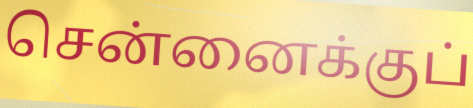
சென்னைக்குப்